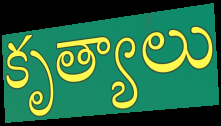
కృత్యాలు